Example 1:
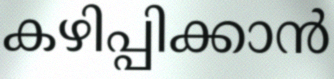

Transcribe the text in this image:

കഴിപ്പിക്കാൻ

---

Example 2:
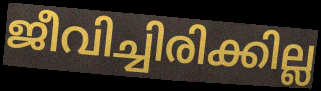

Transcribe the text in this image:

ജീവിച്ചിരിക്കില്ല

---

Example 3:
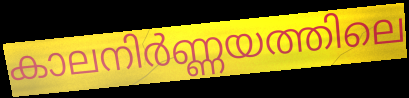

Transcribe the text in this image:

കാലനിർണ്ണയത്തിലെ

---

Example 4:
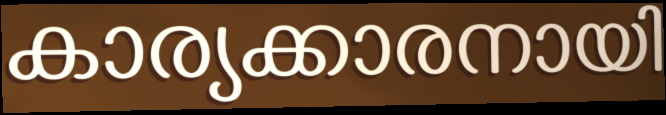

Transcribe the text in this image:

കാര്യക്കാരനായി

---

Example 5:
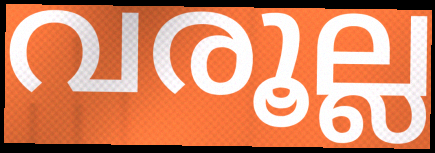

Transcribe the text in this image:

വരൂല്ല